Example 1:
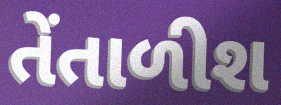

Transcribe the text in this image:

તેંતાળીશ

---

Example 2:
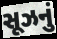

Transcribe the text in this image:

સૂઝનું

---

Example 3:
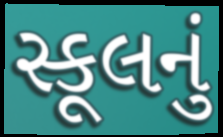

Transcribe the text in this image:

સ્કૂલનું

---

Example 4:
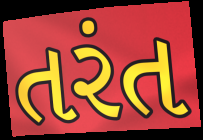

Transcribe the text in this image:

તરંત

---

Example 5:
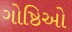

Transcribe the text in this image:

ગોષ્ઠિઓ